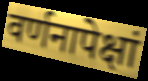
वर्णनापेक्षां